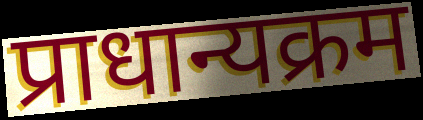
प्राधान्यक्रम